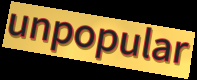
unpopular